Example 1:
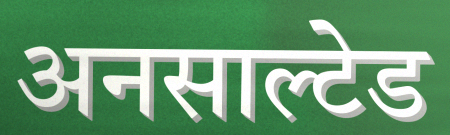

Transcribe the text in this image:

अनसाल्टेड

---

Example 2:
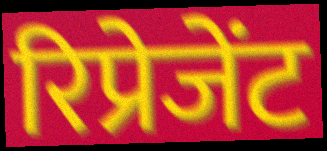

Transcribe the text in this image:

रिप्रेजेंट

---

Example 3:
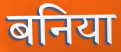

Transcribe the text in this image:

बनिया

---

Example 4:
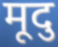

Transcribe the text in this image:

मूदु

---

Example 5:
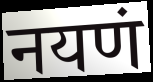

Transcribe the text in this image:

नयणं